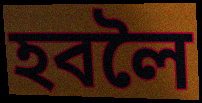
হবলৈ